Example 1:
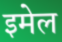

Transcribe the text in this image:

इमेल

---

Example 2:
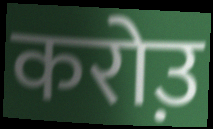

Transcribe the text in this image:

करोउ़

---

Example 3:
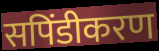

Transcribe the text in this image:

सपिंडीकरण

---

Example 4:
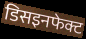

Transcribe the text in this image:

डिसइनफेक्ट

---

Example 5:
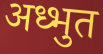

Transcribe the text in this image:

अध्भुत